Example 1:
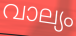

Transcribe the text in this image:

വാല്യം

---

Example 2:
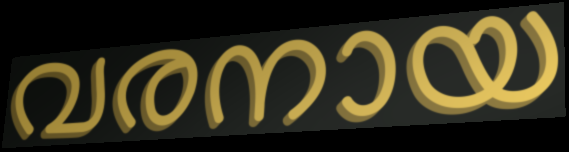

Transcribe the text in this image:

വരനായ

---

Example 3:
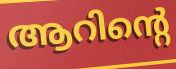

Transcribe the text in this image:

ആറിന്റെ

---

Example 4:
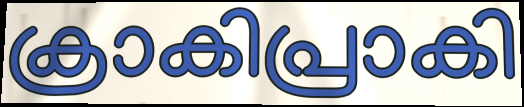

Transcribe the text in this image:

ക്രാകിപ്രാകി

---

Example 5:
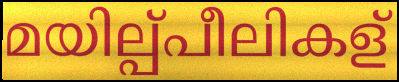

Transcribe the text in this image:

മയില്പ്പീലികള്